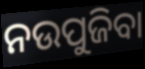
ନଉପୁଜିବା